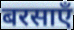
बरसाएँ